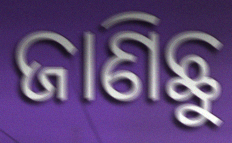
ଜାଣିଛୁ